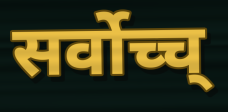
सर्वोच्च्